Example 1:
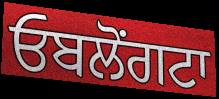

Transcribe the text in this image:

ਓਬਲੋਂਗਟਾ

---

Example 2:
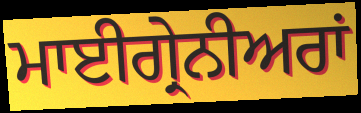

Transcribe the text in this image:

ਮਾਈਗ੍ਰੇਨੀਅਰਾਂ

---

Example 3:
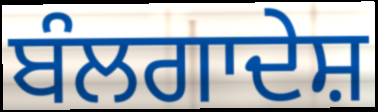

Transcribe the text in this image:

ਬੰਲਗਾਦੇਸ਼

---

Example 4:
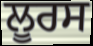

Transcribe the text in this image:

ਲੂਰਸ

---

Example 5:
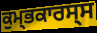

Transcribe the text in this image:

ਕੁਮ੍ਭਕਾਰਸ੍ਸ